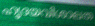
ഹൃദയവിശാലത